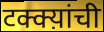
टक्क्य़ांची